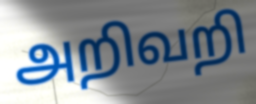
அறிவறி